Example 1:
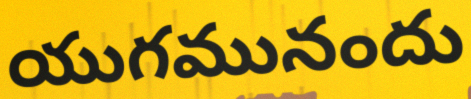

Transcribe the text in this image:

యుగమునందు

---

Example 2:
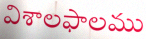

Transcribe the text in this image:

విశాలఫాలము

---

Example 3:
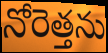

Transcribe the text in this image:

నోరెత్తను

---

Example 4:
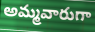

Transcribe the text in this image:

అమ్మవారుగా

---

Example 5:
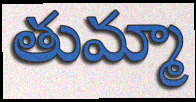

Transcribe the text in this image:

తుమ్మా